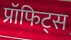
प्रॉफिट्स